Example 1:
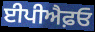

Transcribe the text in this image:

ਈਪੀਐਫ਼ਓ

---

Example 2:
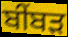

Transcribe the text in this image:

ਬੀੰਬੜ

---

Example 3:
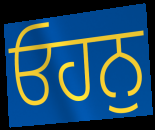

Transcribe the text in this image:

ਓਹਨੁ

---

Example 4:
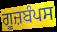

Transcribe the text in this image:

ਗੂਜ਼ਬੰਪਸ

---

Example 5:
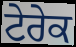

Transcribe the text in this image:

ਟੇਰੇਕ